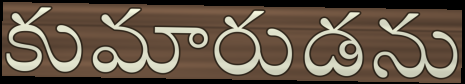
కుమారుడను